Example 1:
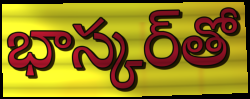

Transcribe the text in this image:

భాస్కర్‌తో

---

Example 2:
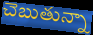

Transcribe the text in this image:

చెబుతున్నా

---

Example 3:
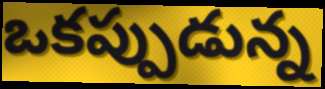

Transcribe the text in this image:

ఒకప్పుడున్న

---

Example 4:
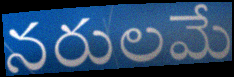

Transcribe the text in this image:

నరులమే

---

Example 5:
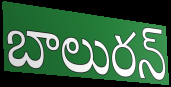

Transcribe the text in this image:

బాలురన్